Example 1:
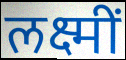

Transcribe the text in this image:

लक्ष्मीं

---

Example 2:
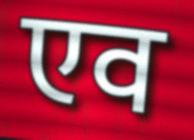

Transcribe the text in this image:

एव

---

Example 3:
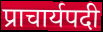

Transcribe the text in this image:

प्राचार्यपदी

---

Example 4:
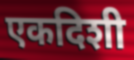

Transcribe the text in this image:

एकदिशी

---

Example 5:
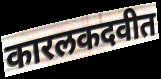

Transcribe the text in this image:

कारलकदवीत